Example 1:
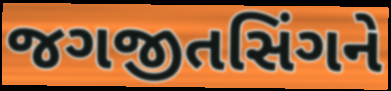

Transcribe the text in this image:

જગજીતસિંગને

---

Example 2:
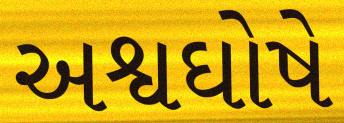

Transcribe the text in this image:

અશ્વઘોષે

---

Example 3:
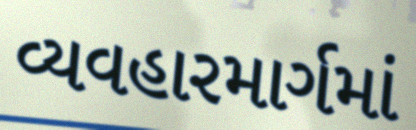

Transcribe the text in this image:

વ્યવહારમાર્ગમાં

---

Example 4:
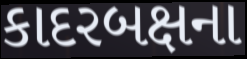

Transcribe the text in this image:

કાદરબક્ષના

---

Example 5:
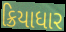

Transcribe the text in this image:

ક્રિયાધાર